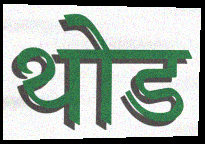
थोड